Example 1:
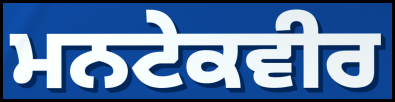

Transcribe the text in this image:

ਮਨਟੇਕਵੀਰ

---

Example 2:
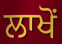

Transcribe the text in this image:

ਲਾਖੋਂ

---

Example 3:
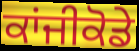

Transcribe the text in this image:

ਕਾਂਜੀਕੋਡੇ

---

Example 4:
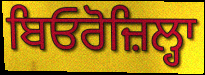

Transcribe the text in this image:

ਬਿਓਰੋਜ਼ਿਲ੍ਹਾ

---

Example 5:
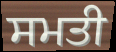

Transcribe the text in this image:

ਸਮਤੀ